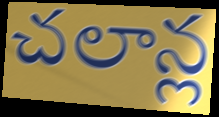
చలాన్ల